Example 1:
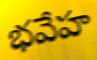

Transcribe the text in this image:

భవేహ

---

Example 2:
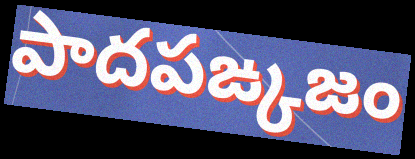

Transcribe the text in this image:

పాదపఙ్కజం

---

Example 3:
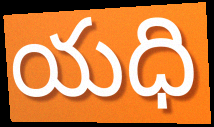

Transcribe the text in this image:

యధి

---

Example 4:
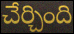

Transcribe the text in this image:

చేర్చింది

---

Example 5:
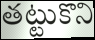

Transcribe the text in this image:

తట్టుకొని